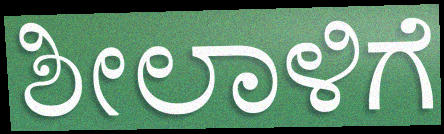
ಶೀಲಾಳಿಗೆ